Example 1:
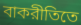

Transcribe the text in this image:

বাকরীতিতে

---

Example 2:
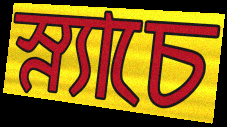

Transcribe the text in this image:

স্ন্যাচে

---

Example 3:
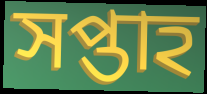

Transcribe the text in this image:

সপ্তাহ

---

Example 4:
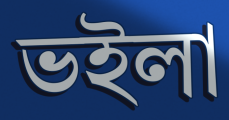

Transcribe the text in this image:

ভইলা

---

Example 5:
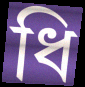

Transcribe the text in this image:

ধি